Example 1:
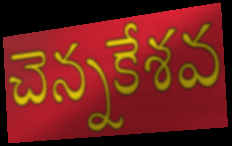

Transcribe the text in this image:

చెన్నకేశవ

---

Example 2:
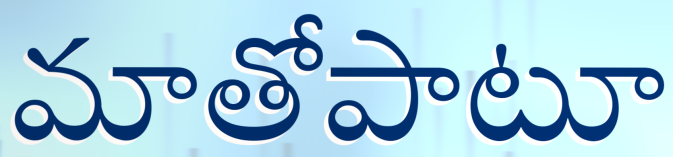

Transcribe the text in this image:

మాతోపాటూ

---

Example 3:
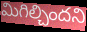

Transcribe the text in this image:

మిగిల్చిందని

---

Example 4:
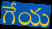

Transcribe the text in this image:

గేయ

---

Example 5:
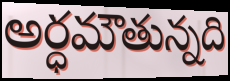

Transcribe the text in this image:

అర్ధమౌతున్నది